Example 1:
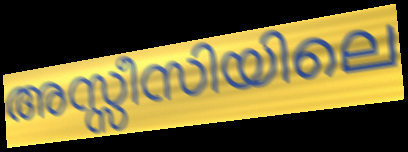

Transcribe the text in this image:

അസ്സീസിയിലെ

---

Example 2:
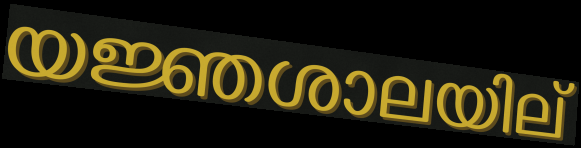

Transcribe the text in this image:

യജ്ഞശാലയില്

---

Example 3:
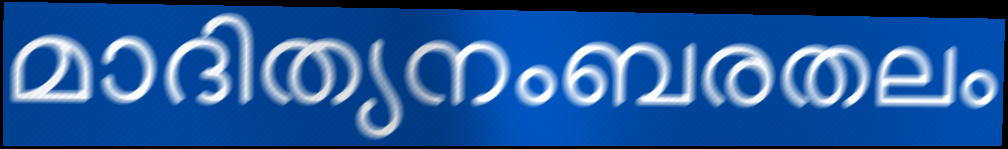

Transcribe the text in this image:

മാദിത്യനംബരതലം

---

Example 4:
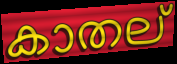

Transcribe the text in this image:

കാതല്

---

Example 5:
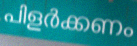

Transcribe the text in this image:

പിളർക്കണം